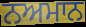
ਨਅਮਾਨ